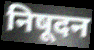
निषूदन